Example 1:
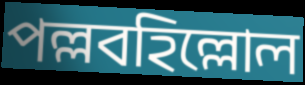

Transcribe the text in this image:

পল্লবহিল্লোল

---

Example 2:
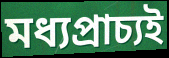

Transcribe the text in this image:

মধ্যপ্রাচ্যই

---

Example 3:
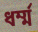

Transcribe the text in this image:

ধর্ম্ম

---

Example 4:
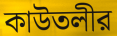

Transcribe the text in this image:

কাউতলীর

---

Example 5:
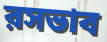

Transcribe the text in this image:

রসভাব